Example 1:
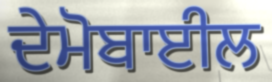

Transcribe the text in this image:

ਦੇਮੋਬਾਈਲ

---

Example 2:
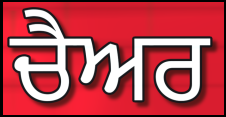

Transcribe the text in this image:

ਚੈਅਰ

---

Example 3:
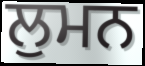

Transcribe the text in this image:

ਲੁਮਨ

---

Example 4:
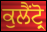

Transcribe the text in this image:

ਕੁਲੈਂਟ੍ਰੋ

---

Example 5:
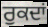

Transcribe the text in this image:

ਰੁਕਦਾਂ